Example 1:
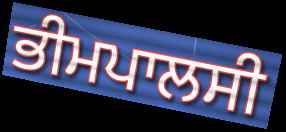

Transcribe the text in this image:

ਭੀਮਪਾਲਸੀ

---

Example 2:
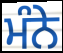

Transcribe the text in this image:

ਮੰਨੇ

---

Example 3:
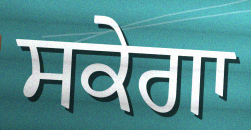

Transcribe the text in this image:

ਸਕੇਗਾ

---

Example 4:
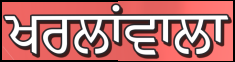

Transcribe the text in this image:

ਖਰਲਾਂਵਾਲਾ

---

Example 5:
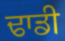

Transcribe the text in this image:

ਢਾਡੀ